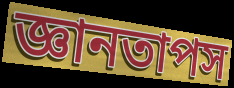
জ্ঞানতাপস